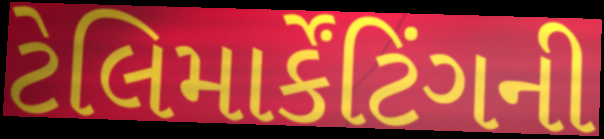
ટેલિમાર્કેંટિંગની